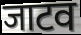
जाटव